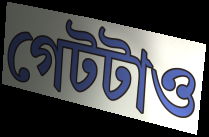
গেটটাও